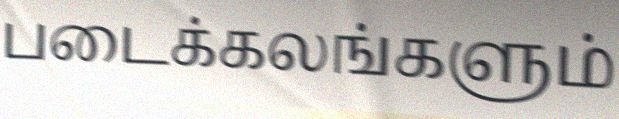
படைக்கலங்களும்